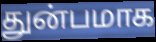
துன்பமாக